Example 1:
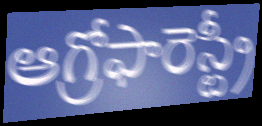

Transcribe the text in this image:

ఆగ్రోఫారెస్ట్రీ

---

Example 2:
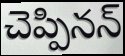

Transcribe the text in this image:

చెప్పినన్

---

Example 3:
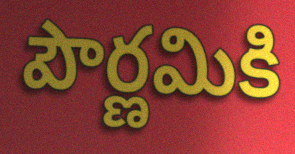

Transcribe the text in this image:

పౌర్ణమికి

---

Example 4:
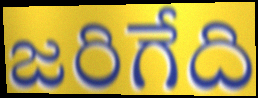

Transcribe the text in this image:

జరిగేది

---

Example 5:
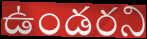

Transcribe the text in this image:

ఉండరని